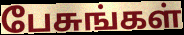
பேசுங்கள்